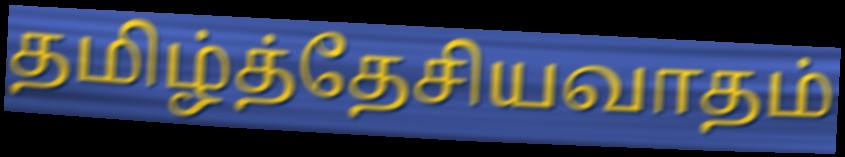
தமிழ்த்தேசியவாதம்